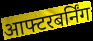
आफ्टरबर्निंग